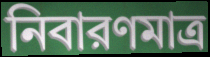
নিবারণমাত্র